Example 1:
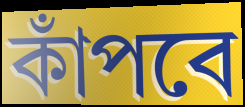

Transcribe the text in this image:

কাঁপবে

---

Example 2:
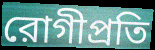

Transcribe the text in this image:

রোগীপ্রতি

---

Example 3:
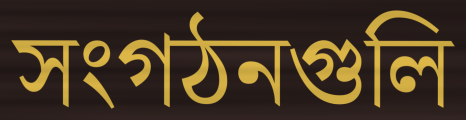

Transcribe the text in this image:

সংগঠনগুলি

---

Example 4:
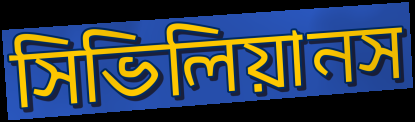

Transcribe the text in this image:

সিভিলিয়ানস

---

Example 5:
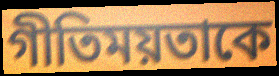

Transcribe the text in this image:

গীতিময়তাকে